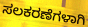
ಸಲಕರಣೆಗಳಾಗಿ